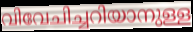
വിവേചിച്ചറിയാനുള്ള